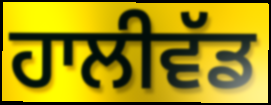
ਹਾਲੀਵੱਡ